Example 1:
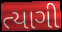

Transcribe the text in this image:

ત્યાગી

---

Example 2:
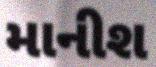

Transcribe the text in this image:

માનીશ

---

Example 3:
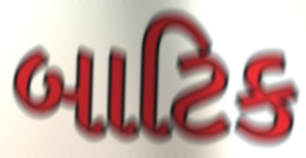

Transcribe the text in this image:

બાટિક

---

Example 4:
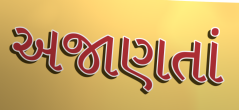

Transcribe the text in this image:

અજાણતાં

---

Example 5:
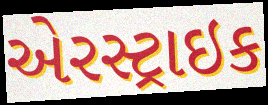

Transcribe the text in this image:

એરસ્ટ્રાઇક